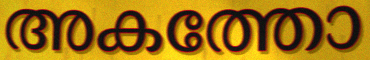
അകത്തോ